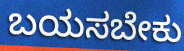
ಬಯಸಬೇಕು